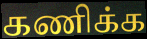
கணிக்க